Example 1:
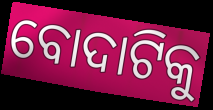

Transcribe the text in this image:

ବୋଦାଟିକୁ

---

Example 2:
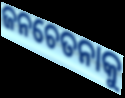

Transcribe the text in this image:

ଜନଚେତନାକୁ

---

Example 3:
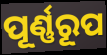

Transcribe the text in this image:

ପୂର୍ଣ୍ଣରୂପ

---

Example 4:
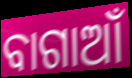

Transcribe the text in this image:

ବାଗାଆଁ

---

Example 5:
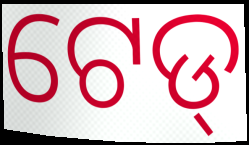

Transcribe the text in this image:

ଟେଡ୍